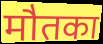
मौतका